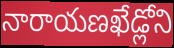
నారాయణఖేడ్లోని